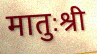
मातुःश्री